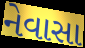
નેવાસા